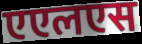
एएलएस